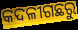
କଦଳୀଗଛରୁ